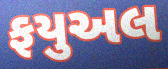
ફયુઅલ